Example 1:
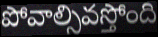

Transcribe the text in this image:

పోవాల్సివస్తోంది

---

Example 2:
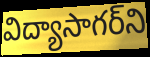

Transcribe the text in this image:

విద్యాసాగర్‌ని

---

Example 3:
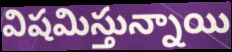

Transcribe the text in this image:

విషమిస్తున్నాయి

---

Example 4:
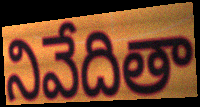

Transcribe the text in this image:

నివేదితా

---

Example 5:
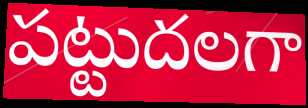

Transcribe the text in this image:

పట్టుదలగా